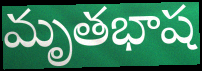
మృతభాష